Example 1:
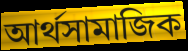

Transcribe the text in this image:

আর্থসামাজিক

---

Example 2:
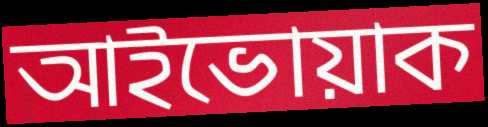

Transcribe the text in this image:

আইভোয়াক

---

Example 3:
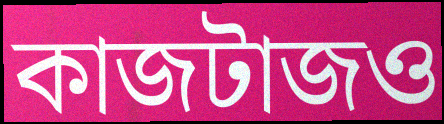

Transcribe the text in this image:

কাজটাজও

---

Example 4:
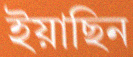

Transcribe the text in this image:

ইয়াছিন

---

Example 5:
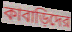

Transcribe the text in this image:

কাবাড়িদের